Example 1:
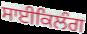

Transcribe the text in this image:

ਸਾਈਕਿਲੰਗ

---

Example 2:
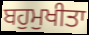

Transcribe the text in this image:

ਬਹੁਮੁਖੀਤਾ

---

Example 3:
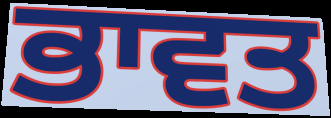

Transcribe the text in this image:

ਭਾਵਤ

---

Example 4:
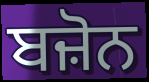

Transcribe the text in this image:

ਬਜ਼ੋਨ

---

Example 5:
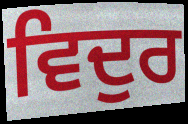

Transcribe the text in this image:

ਵਿਦੁਰ